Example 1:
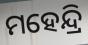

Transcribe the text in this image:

ମହେନ୍ଦ୍ରି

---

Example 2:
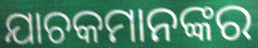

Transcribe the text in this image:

ଯାଚକମାନଙ୍କର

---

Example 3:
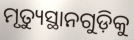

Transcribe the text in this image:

ମୃତ୍ୟୁସ୍ଥାନଗୁଡ଼ିକୁ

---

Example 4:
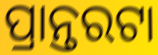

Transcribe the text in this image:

ପ୍ରାନ୍ତରଟା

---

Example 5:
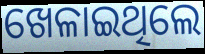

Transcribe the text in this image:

ଖେଳାଇଥିଲେ